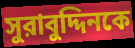
সুরাবুদ্দিনকে